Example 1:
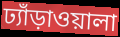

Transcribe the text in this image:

ঢ্যাঁড়াওয়ালা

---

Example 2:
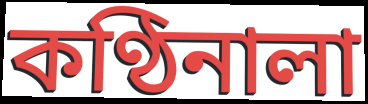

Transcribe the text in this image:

কণ্ঠিনালা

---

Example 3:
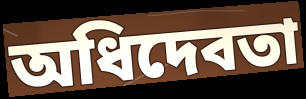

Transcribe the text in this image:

অধিদেবতা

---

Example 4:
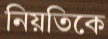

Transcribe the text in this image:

নিয়তিকে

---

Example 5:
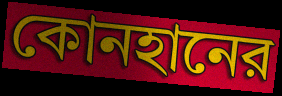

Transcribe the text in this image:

কোনহানের